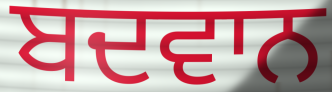
ਬਦਵਾਨ